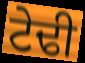
ਟੇਢੀ